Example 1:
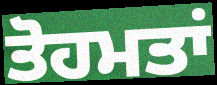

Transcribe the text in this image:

ਤੋਹਮਤਾਂ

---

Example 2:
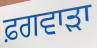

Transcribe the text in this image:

ਫ਼ਗਵਾੜਾ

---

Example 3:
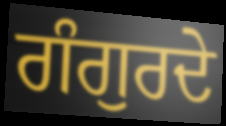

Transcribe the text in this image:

ਗੰਗੁਰਦੇ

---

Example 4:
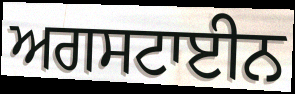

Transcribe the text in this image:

ਅਗਸਟਾਈਨ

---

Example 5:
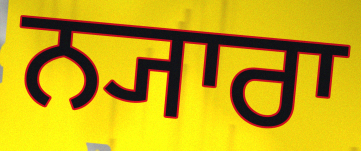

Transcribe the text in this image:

ਨ੍ਯਾਰਾ